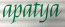
apatya